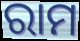
ରାମ